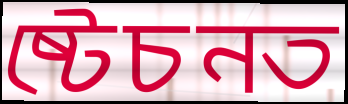
ষ্টেচনত